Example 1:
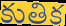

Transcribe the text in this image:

కుతిక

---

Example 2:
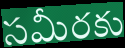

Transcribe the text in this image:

సమీరకు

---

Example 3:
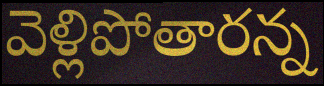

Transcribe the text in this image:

వెళ్లిపోతారన్న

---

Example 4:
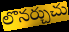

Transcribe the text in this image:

లొనర్చుచు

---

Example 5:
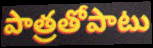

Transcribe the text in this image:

పాత్రతోపాటు